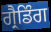
ਗ੍ਰੈਡਿੰਗ